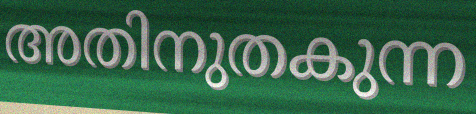
അതിനുതകുന്ന